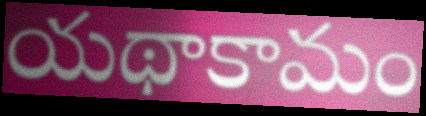
యథాకామం